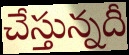
చేస్తున్నదీ